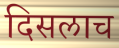
दिसलाच